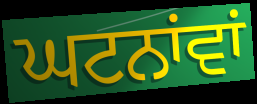
ਘਟਨਾਂਵਾਂ